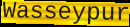
Wasseypur